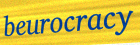
beurocracy